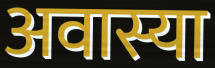
अवास्या